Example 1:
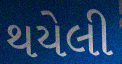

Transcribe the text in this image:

થયેલી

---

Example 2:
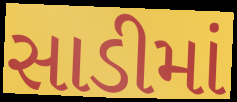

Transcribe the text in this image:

સાડીમાં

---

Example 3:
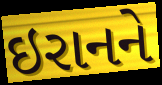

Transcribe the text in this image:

ઇરાનને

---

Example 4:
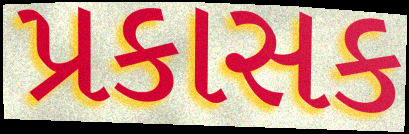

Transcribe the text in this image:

પ્રકાસક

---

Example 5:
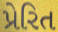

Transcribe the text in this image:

પ્રેરિત